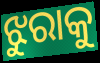
ଝୁରାକୁ